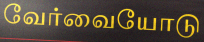
வேர்வையோடு